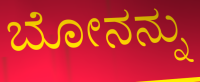
ಬೋನನ್ನು